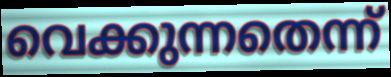
വെക്കുന്നതെന്ന്